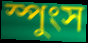
স্পুংস